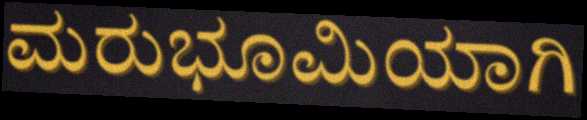
ಮರುಭೂಮಿಯಾಗಿ